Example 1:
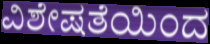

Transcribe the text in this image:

ವಿಶೇಷತೆಯಿಂದ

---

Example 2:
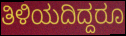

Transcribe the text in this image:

ತಿಳಿಯದಿದ್ದರೂ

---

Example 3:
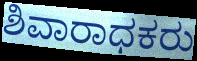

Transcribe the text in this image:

ಶಿವಾರಾಧಕರು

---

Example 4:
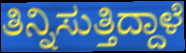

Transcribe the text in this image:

ತಿನ್ನಿಸುತ್ತಿದ್ದಾಳೆ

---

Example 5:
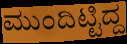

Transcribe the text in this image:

ಮುಂದಿಟ್ಟಿದ್ದ